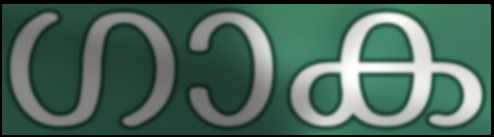
ഗാക